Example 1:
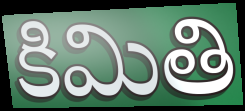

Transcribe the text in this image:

కిమితి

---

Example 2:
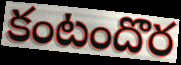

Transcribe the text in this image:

కంటందొర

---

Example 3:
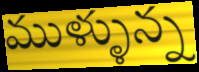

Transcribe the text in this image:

ముళ్ళున్న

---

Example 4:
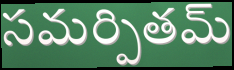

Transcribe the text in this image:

సమర్పితమ్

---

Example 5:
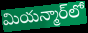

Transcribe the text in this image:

మియన్మార్‌లో